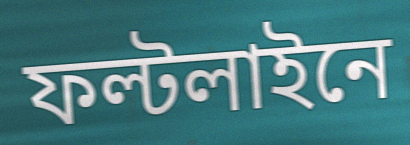
ফল্টলাইনে